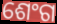
ଶେଂଗ